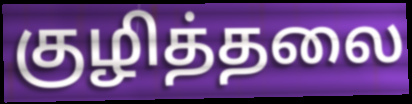
குழித்தலை